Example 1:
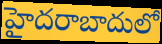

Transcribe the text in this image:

హైదరాబాదులో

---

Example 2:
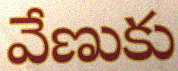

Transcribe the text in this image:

వేణుకు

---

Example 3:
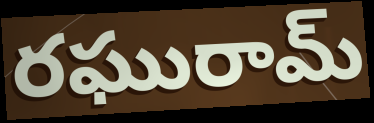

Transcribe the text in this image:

రఘురామ్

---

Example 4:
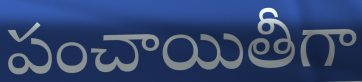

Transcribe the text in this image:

పంచాయితీగా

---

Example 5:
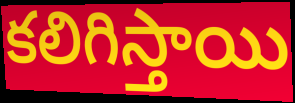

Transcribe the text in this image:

కలిగిస్తాయి